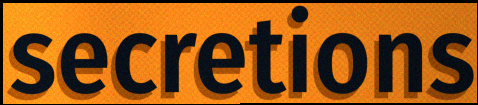
secretions